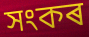
সংকৰ